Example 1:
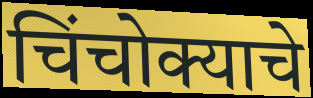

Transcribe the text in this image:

चिंचोक्याचे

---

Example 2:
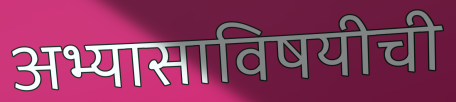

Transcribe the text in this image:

अभ्यासाविषयीची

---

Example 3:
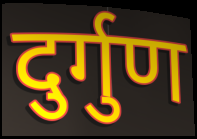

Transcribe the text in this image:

दुर्गुण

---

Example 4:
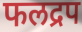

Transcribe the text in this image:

फलद्रप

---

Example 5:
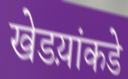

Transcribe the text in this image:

खेडय़ांकडे